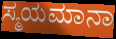
ಸ್ಮಯಮಾನಾ